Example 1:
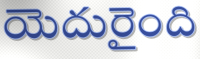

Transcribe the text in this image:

యెదురైంది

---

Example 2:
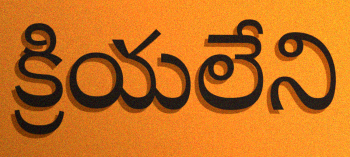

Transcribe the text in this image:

క్రియలేని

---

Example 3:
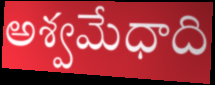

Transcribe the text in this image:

అశ్వమేధాది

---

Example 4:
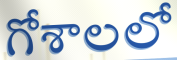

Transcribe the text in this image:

గోశాలలో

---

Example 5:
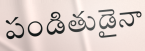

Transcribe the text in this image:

పండితుడైనా